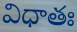
విధాతః